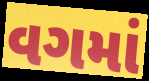
વગમાં